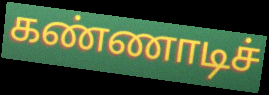
கண்ணாடிச்